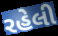
રહેલી